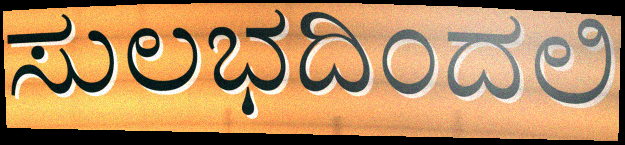
ಸುಲಭದಿಂದಲಿ